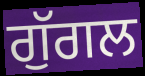
ਗੁੱਗਲ